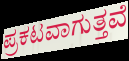
ಪ್ರಕಟವಾಗುತ್ತವೆ